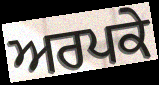
ਅਰਪਕੇ